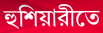
হুশিয়ারীতে